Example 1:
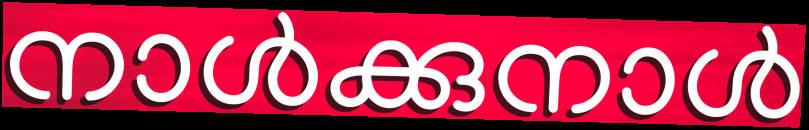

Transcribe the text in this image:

നാൾക്കുനാൾ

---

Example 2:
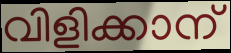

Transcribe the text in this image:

വിളിക്കാന്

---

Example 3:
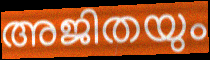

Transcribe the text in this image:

അജിതയും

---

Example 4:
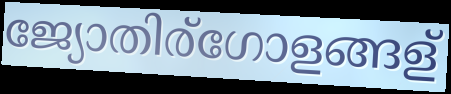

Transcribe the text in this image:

ജ്യോതിര്ഗോളങ്ങള്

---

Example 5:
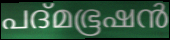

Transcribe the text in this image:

പദ്മഭൂഷൻ